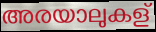
അരയാലുകള്